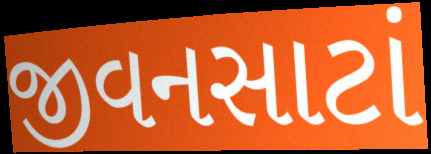
જીવનસાટાં